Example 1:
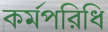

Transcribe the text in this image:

কর্মপরিধি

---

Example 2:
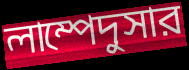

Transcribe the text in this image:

লাম্পেদুসার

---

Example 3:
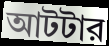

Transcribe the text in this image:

আটটার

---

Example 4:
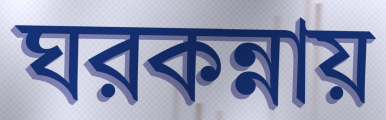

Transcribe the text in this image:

ঘরকন্নায়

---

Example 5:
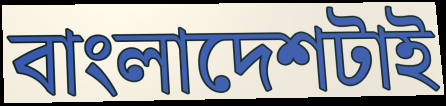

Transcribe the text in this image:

বাংলাদেশটাই